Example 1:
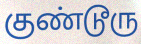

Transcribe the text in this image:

குண்டூரு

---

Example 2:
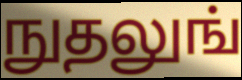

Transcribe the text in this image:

நுதலுங்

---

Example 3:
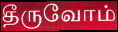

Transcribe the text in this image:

தீருவோம்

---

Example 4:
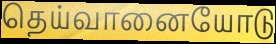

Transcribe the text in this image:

தெய்வானையோடு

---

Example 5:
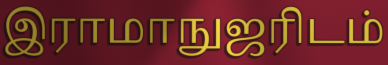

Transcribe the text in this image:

இராமாநுஜரிடம்